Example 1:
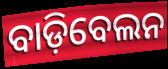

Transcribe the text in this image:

ବାଡ଼ିବେଲନ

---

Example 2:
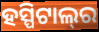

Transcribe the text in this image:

ହସ୍ପିଟାଲ୍‌ର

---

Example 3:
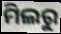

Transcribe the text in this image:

ମିଲରୁ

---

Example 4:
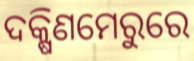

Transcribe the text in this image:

ଦକ୍ଷିଣମେରୁରେ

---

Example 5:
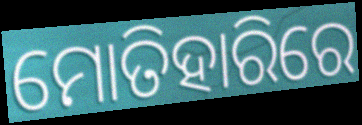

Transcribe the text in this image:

ମୋତିହାରିରେ